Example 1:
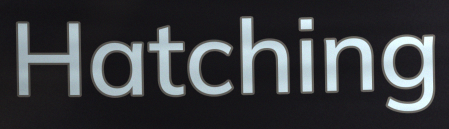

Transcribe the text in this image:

Hatching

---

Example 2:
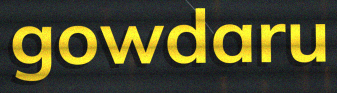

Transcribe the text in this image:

gowdaru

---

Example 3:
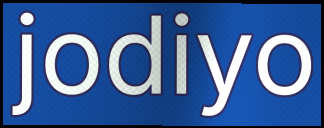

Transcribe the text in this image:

jodiyo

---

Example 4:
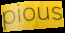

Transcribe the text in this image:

pious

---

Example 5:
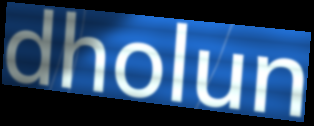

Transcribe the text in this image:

dholun